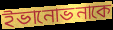
ইভানোভনাকে